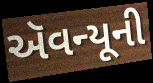
ઍવન્યૂની